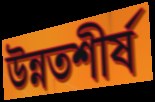
উন্নতশীর্ষ